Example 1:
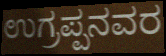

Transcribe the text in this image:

ಉಗ್ರಪ್ಪನವರ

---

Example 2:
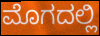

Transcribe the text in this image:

ಮೊಗದಲ್ಲಿ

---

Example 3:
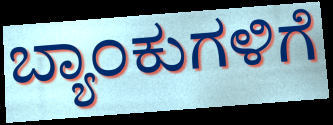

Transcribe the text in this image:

ಬ್ಯಾಂಕುಗಳಿಗೆ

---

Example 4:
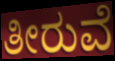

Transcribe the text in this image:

ತೀರುವೆ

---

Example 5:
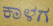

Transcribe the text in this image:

ಕಾಳಗ